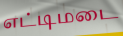
எட்டிமடை